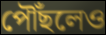
পৌঁছলেও